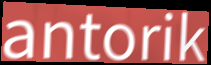
antorik